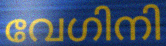
വേഗിനി